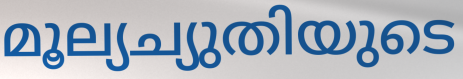
മൂല്യച്യുതിയുടെ